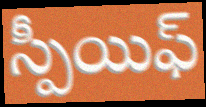
స్పీయిఫ్